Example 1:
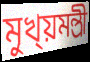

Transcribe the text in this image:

মুখ্য়মন্ত্রী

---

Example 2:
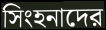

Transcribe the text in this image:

সিংহনাদের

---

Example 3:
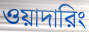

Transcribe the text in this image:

ওয়াদারিং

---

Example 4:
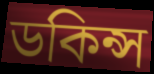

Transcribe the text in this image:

ডকিন্স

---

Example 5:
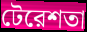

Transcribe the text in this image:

টেরেশতা